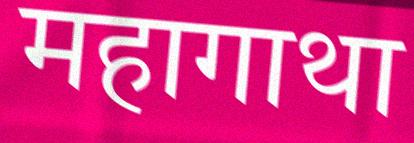
महागाथा